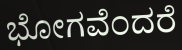
ಭೋಗವೆಂದರೆ